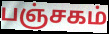
பஞ்சகம்